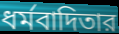
ধর্মবাদিতার